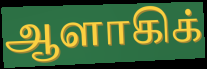
ஆளாகிக்